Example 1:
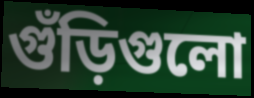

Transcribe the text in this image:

গুঁড়িগুলো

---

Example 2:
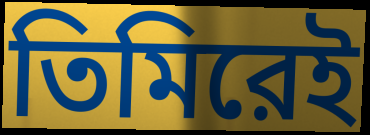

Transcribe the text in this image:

তিমিরেই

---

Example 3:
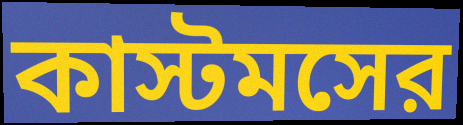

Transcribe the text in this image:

কাস্টমসের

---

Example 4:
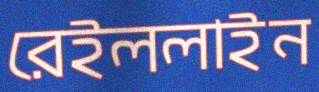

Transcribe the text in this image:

রেইললাইন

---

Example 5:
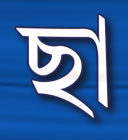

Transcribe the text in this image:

ছা